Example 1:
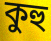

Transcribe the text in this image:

কুহু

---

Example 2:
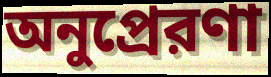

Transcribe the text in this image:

অনুপ্রেরণা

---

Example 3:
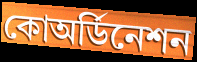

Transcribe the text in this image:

কোঅর্ডিনেশন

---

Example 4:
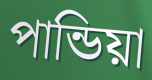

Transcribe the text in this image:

পান্ডিয়া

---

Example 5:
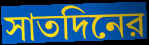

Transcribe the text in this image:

সাতদিনের